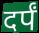
दर्पं